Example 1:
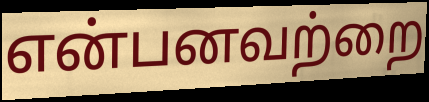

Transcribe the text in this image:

என்பனவற்றை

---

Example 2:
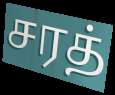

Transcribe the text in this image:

சரத்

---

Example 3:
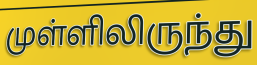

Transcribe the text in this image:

முள்ளிலிருந்து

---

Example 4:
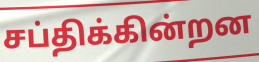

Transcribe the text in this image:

சப்திக்கின்றன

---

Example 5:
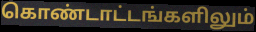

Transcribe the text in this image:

கொண்டாட்டங்களிலும்